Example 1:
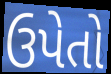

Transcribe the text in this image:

ઉપેતો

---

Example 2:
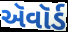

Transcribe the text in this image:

ઍવૉર્ડ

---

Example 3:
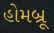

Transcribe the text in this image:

હોમબ્રૂ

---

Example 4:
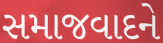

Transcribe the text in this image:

સમાજવાદને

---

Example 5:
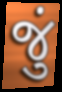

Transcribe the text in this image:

જું